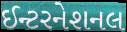
ઈન્ટરનેશનલ